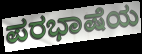
ಪರಭಾಷೆಯ